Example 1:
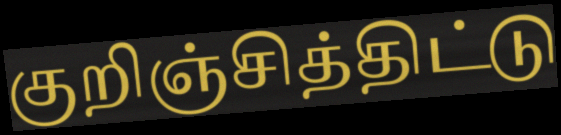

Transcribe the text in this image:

குறிஞ்சித்திட்டு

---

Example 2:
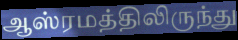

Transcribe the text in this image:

ஆஸ்ரமத்திலிருந்து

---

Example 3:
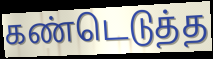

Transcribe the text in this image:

கண்டெடுத்த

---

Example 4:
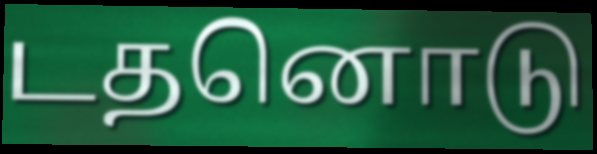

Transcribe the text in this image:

டதனொடு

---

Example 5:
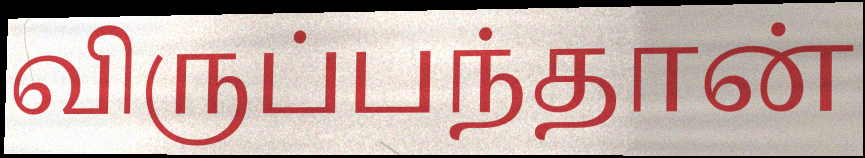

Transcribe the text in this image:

விருப்பந்தான்